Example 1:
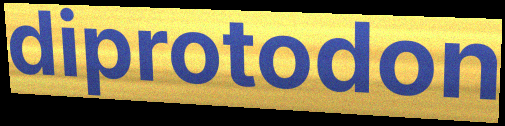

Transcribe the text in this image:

diprotodon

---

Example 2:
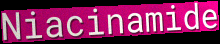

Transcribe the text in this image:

Niacinamide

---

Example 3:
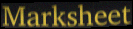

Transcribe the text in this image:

Marksheet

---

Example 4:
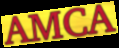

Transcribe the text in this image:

AMCA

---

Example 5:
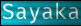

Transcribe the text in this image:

Sayaka